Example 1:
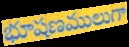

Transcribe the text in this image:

భూషణములుగా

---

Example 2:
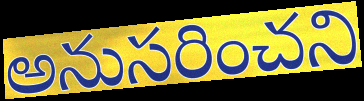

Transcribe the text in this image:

అనుసరించని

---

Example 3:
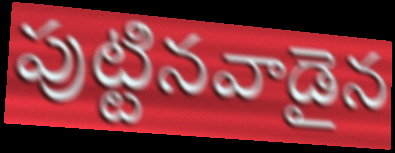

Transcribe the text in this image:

పుట్టినవాడైన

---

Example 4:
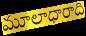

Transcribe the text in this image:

మూలాధారాది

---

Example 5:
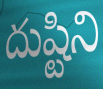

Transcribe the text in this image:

దుష్టిని